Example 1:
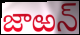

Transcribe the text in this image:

జాఱన్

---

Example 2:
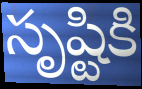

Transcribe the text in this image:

సృష్టికి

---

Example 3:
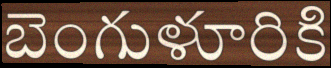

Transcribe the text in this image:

బెంగుళూరికి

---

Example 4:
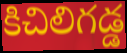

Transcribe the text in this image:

కిచిలిగడ్డ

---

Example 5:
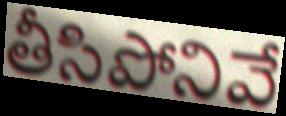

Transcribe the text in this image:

తీసిపోనివే